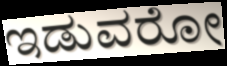
ಇಡುವರೋ